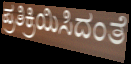
ಪ್ರತಿಕ್ರಿಯಿಸಿದಂತೆ